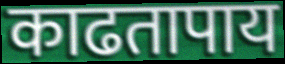
काढतापाय